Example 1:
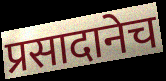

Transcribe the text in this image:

प्रसादानेच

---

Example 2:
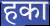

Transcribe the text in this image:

हका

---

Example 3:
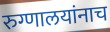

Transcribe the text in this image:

रुग्णालयांनाच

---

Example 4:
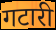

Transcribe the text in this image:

गटारी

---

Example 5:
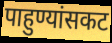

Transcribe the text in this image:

पाहुण्यांसकट